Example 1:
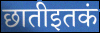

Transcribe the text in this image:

छातीइतकं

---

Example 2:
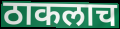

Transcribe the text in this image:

ठाकलाच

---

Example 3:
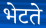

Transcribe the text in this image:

भेटते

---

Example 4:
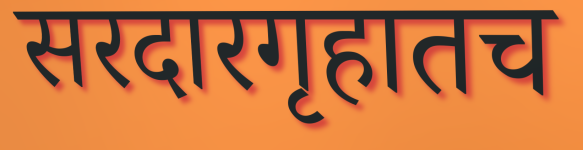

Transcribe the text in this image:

सरदारगृहातच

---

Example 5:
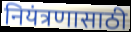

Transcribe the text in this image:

नियंत्रणासाठी